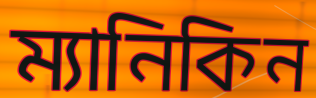
ম্যানিকিন